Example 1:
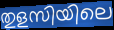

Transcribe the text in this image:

തുളസിയിലെ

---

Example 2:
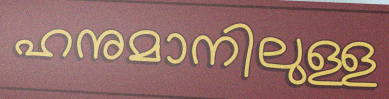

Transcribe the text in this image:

ഹനുമാനിലുള്ള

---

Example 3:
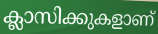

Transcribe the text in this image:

ക്ലാസിക്കുകളാണ്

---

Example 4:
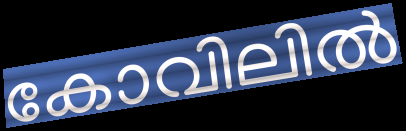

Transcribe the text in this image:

കോവിലിൽ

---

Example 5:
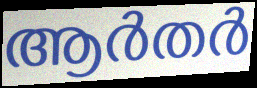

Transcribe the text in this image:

ആർതർ